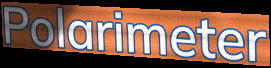
Polarimeter